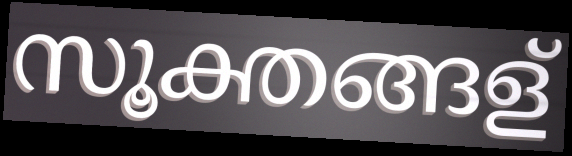
സൂക്തങ്ങള്